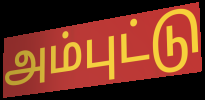
அம்புட்டு